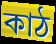
কাঠ